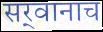
सर्वानाच